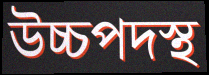
উচ্চপদস্থ